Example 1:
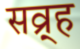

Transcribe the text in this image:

सव्र्ह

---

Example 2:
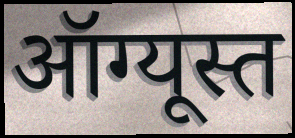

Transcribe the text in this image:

ऑग्यूस्त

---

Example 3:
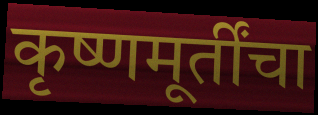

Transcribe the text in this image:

कृष्णमूर्तींचा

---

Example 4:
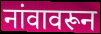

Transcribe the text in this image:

नांवावरून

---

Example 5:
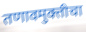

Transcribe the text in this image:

तणावमुक्तीचा